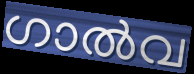
ഗാൽവ